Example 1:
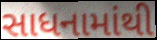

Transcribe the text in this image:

સાધનામાંથી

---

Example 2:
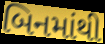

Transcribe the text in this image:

બિનમાંથી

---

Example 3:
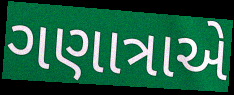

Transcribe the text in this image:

ગણાત્રાએ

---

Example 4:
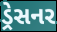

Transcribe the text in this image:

ડ્રેસનર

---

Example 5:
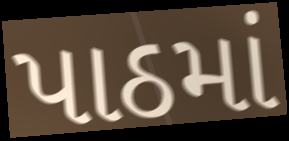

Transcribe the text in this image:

પાઠમાં